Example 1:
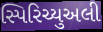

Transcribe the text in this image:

સ્પિરિચ્યુઅલી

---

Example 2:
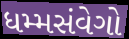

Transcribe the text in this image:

ધમ્મસંવેગો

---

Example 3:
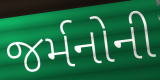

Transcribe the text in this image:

જર્મનોની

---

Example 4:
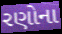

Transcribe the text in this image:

રણોના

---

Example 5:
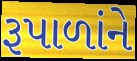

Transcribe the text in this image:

રૂપાળાંને